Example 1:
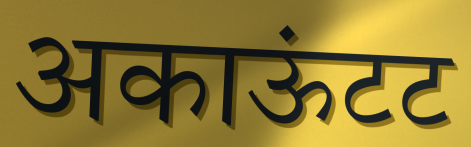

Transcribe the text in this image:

अकाऊंटट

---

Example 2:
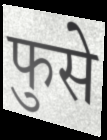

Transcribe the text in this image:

फुसे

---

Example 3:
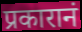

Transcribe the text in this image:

प्रकारानं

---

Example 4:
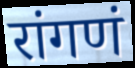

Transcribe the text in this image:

रांगणं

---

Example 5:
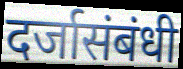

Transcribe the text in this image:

दर्जासंबंधी